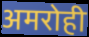
अमरोही